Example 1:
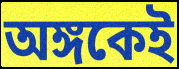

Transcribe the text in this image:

অঙ্গকেই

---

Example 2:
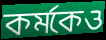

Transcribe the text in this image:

কর্মকেও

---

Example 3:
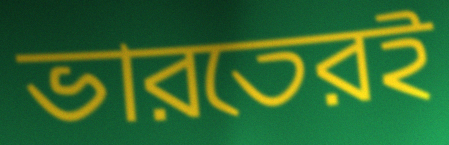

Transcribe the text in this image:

ভারতেরই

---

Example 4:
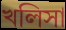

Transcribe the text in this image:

খলিসা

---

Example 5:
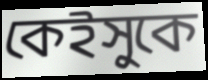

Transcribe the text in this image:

কেইসুকে